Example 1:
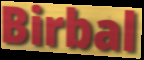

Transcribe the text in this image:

Birbal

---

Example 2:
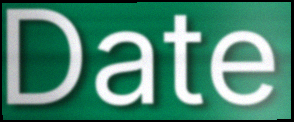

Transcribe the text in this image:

Date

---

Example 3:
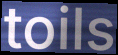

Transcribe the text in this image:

toils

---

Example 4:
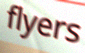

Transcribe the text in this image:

flyers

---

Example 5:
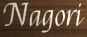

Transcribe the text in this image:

Nagori